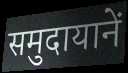
समुदायानें